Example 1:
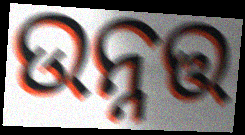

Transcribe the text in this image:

ଉନ୍ନତ୍ତ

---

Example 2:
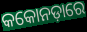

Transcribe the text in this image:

କକୋନଡ଼ାରେ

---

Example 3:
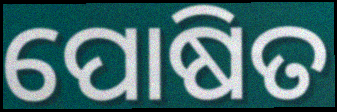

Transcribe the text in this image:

ପୋଷିତ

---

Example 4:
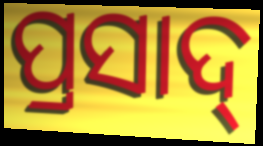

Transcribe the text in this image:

ପ୍ରସାଦ୍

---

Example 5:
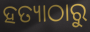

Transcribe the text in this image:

ହତ୍ୟାଠାରୁ